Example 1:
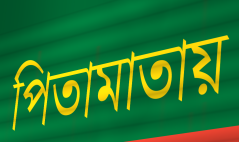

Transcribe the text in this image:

পিতামাতায়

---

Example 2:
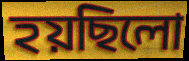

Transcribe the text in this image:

হয়ছিলো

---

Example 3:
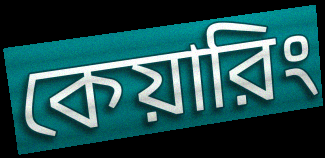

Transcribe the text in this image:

কেয়ারিং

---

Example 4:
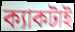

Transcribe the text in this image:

ক্যাকটাই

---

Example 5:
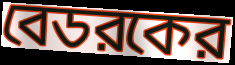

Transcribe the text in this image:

বেডরকের